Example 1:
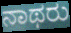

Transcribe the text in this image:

ನಾಥರು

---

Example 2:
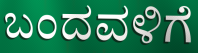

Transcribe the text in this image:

ಬಂದವಳಿಗೆ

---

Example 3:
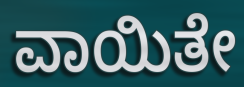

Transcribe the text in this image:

ವಾಯಿತೇ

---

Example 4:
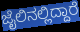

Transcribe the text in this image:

ಜೈಲಿನಲ್ಲಿದ್ದಾರೆ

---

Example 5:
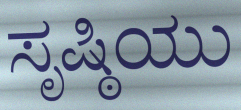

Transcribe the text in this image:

ಸೃಷ್ಠಿಯು